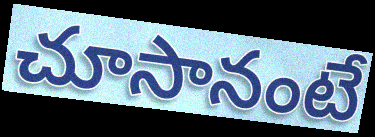
చూసానంటే